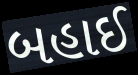
બહાઈ